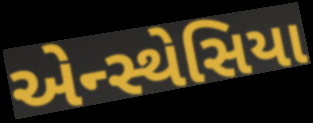
એન્સ્થેસિયા